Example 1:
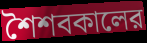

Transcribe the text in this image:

শৈশবকালের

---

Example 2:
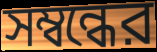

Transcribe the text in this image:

সম্বন্ধের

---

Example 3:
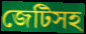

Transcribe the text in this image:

জেটিসহ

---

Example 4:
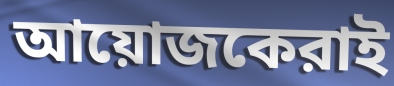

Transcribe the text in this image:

আয়োজকেরাই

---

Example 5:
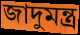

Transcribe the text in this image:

জাদুমন্ত্র